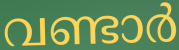
വണ്ടാർ